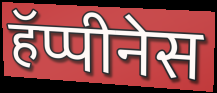
हॅप्पीनेस